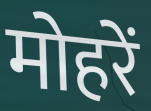
मोहरें